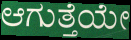
ಆಗುತ್ತೆಯೇ